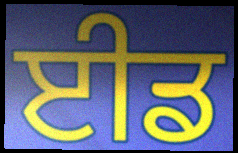
ਈਡ